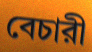
বেচারী